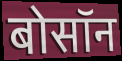
बोसॉन